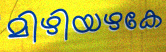
മിഴിയഴകേ